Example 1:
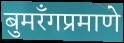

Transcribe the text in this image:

बुमरँगप्रमाणे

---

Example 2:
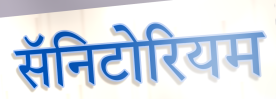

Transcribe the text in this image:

सॅनिटोरियम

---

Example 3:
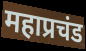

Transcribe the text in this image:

महाप्रचंड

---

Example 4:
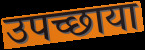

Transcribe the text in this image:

उपच्छाया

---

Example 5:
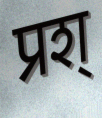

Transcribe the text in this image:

प्रश्